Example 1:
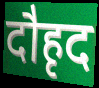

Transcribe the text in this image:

दौहृद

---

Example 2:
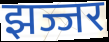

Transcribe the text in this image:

झज्जर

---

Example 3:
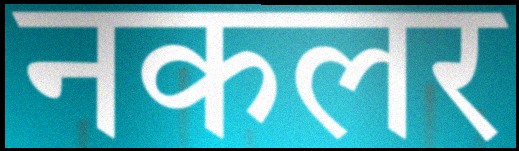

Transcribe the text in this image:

नकलर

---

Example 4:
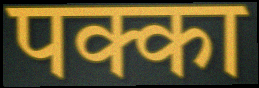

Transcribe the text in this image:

पक्का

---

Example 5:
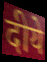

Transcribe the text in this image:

दीये